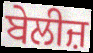
ਬੇਲੀਜ਼